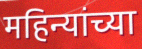
महिन्यांच्या